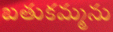
బతుకమ్మను